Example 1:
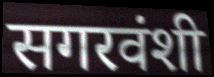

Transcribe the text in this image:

सगरवंशी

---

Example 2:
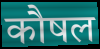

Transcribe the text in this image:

कौषल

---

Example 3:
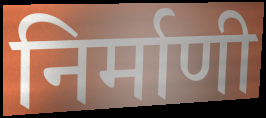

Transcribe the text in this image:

निर्माणी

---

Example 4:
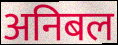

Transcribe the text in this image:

अनिबल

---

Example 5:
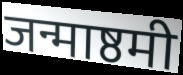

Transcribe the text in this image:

जन्माष्ठमी